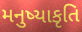
મનુષ્યાકૃતિ